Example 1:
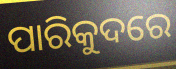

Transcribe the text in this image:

ପାରିକୁଦରେ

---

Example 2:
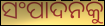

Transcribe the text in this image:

ସଂପାଦନକୁ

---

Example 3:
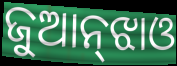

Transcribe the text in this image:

ଜୁଆନ୍‌ଝାଓ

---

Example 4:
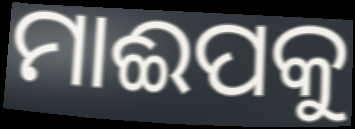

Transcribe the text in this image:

ମାଈପକୁ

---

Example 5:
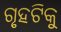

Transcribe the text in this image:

ଗୃହଟିକୁ